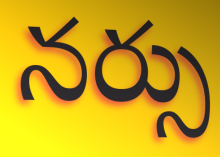
నర్సు